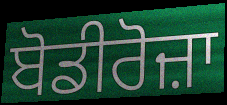
ਬੋਡੀਰੋਜ਼ਾ